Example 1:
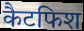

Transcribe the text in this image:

कैटफिश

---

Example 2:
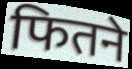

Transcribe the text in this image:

फितने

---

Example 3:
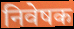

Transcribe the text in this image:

निवेषक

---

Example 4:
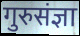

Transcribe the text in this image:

गुरुसंज्ञा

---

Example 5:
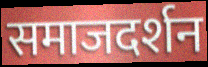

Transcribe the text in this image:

समाजदर्शन